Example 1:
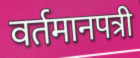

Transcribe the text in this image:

वर्तमानपत्री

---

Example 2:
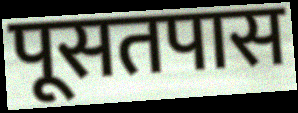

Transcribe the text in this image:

पूसतपास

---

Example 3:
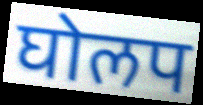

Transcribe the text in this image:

घोलप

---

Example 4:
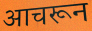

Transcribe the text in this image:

आचरून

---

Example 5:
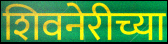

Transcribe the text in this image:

शिवनेरीच्या